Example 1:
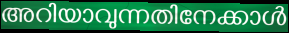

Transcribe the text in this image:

അറിയാവുന്നതിനേക്കാൾ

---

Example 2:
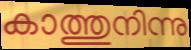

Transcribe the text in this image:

കാത്തുനിന്നു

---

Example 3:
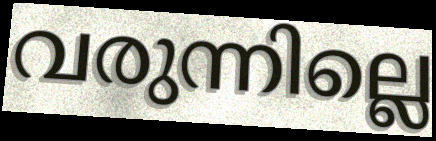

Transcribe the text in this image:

വരുന്നില്ലെ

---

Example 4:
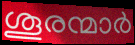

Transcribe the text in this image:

ശൂരന്മാർ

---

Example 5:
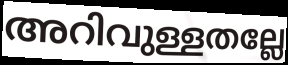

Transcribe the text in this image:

അറിവുള്ളതല്ലേ